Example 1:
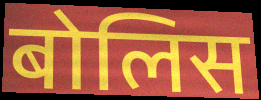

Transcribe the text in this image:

बोलिस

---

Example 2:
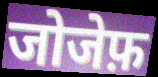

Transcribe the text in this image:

जोजेफ़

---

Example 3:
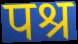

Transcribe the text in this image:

पश्र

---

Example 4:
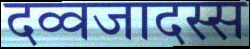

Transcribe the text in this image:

दव्वजादस्स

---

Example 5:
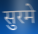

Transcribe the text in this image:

सुरमे